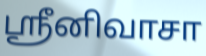
ஸ்ரீனிவாசா